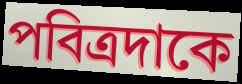
পবিত্রদাকে